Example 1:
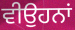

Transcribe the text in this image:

ਵੀਉਹਨਾਂ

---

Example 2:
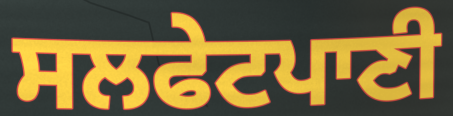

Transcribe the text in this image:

ਸਲਫੇਟਪਾਣੀ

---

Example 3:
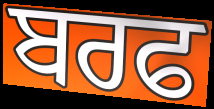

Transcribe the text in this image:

ਬਰਫ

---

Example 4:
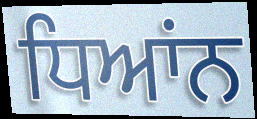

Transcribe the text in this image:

ਧਿਆਂਨ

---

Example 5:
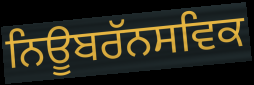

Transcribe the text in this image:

ਨਿਊਬਰੱਨਸਵਿਕ